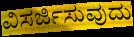
ವಿಸರ್ಜಿಸುವುದು